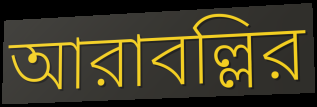
আরাবল্লির